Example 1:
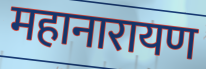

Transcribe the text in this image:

महानारायण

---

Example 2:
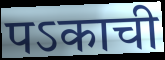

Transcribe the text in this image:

पऽकाची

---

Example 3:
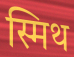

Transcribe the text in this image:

स्मिथ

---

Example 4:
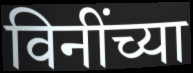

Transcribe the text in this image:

विनींच्या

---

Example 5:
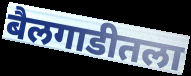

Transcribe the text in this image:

बैलगाडीतला